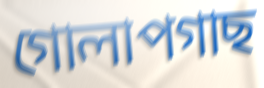
গোলাপগাছ